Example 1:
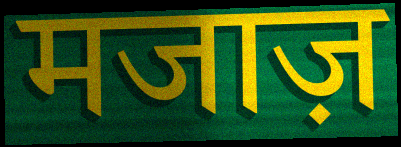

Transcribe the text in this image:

मजाज़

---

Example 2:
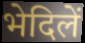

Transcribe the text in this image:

भेदिलें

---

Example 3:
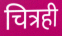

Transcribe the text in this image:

चित्रही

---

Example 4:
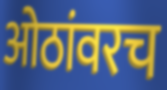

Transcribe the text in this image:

ओठांवरच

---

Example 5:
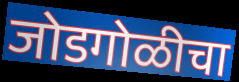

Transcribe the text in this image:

जोडगोळीचा